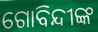
ଗୋବିନ୍ଦୀଙ୍କ